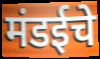
मंडईचे